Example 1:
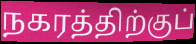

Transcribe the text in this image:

நகரத்திற்குப்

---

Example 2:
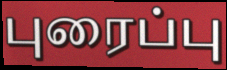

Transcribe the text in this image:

புரைப்பு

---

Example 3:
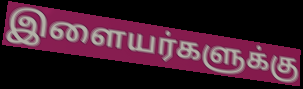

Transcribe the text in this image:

இளையர்களுக்கு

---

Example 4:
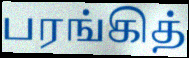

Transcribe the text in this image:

பரங்கித்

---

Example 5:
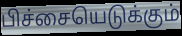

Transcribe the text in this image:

பிச்சையெடுக்கும்